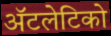
ॲटलेटिको